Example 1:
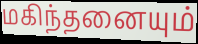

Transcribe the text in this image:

மகிந்தனையும்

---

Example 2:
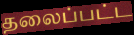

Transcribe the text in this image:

தலைப்பட்ட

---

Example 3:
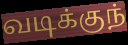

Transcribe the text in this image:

வடிக்குந்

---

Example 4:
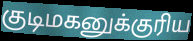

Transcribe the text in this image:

குடிமகனுக்குரிய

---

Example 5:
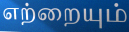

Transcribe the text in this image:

எற்றையும்